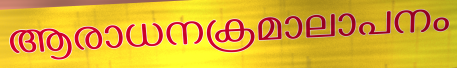
ആരാധനക്രമാലാപനം